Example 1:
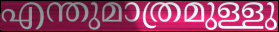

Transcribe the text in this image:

എന്തുമാത്രമുള്ളു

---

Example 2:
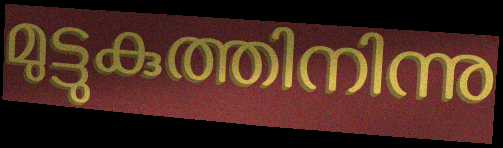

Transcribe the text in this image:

മുട്ടുകുത്തിനിന്നു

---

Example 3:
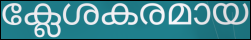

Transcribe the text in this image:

ക്ലേശകരമായ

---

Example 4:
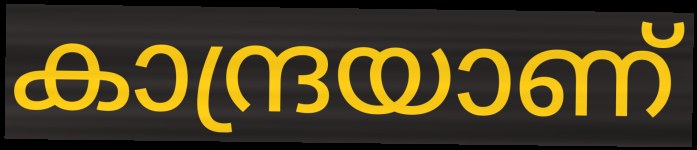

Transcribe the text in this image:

കാന്ദ്രയാണ്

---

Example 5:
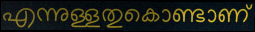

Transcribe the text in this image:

എന്നുള്ളതുകൊണ്ടാണ്